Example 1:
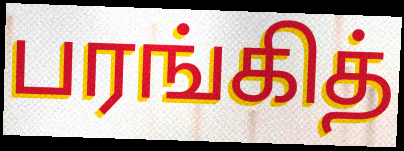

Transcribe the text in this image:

பரங்கித்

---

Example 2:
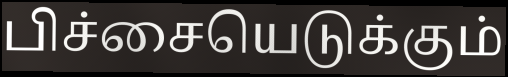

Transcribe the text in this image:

பிச்சையெடுக்கும்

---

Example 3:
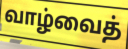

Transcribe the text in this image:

வாழ்வைத்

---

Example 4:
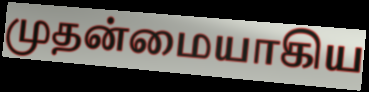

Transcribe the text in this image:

முதன்மையாகிய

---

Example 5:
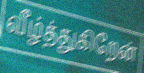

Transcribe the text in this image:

வீழ்த்துகிறேன்